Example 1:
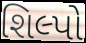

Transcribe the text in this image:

શિલ્પો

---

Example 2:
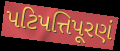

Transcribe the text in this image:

પટિપત્તિપૂરણં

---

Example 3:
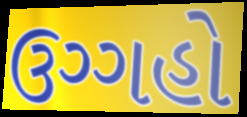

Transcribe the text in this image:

ઉગ્ગહો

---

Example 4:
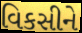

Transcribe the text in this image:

વિકસીને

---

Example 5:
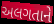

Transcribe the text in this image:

અલગતાને